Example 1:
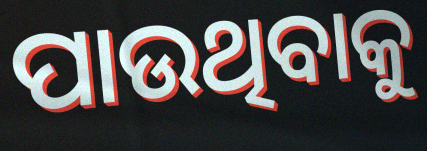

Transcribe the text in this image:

ପାଉଥିବାକୁ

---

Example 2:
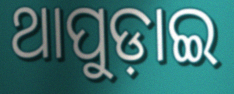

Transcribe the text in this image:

ଥାପୁଡ଼ାଇ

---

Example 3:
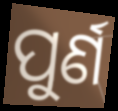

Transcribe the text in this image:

ପୁର୍ଣ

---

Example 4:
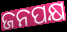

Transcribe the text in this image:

ଜନପକ୍ଷ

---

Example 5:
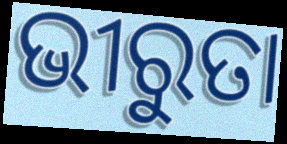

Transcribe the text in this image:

ଭୀରୁତା